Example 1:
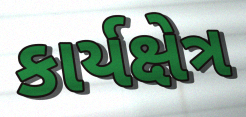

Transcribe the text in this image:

કાર્યક્ષેત્ર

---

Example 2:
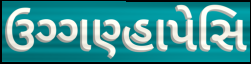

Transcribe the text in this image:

ઉગ્ગણ્હાપેસિ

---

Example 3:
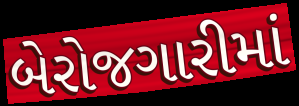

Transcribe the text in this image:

બેરોજગારીમાં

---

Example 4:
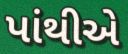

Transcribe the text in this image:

પાંથીએ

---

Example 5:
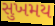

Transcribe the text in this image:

સુખમય